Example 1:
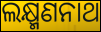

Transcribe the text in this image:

ଲକ୍ଷ୍ମଣନାଥ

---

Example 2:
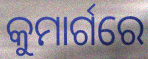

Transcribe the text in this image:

କୁମାର୍ଗରେ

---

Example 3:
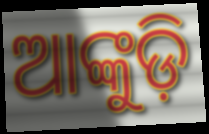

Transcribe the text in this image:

ଆଙ୍କୁଡ଼ି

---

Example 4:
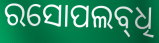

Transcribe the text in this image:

ରସୋପଲବ୍‌ଧି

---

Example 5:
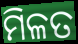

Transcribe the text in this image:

ମିଳତ